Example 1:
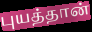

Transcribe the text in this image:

புயத்தான்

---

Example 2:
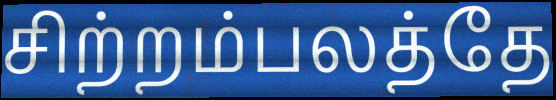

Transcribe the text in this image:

சிற்றம்பலத்தே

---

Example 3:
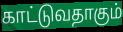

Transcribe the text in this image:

காட்டுவதாகும்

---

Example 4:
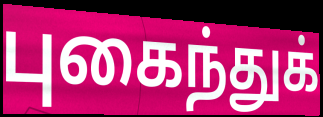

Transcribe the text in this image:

புகைந்துக்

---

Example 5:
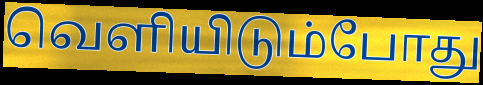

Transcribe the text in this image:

வெளியிடும்போது